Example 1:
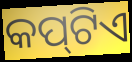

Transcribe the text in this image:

କପ୍‌ଟିଏ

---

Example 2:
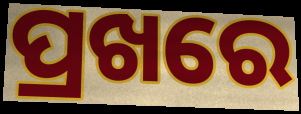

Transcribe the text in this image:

ପ୍ରଖରେ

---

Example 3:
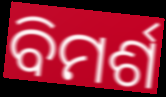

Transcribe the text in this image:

ବିମର୍ଶ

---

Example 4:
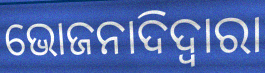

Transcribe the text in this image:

ଭୋଜନାଦିଦ୍ୱାରା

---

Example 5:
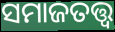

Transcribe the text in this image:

ସମାଜତତ୍ତ୍ୱ